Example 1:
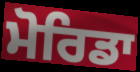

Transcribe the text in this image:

ਮੋਰਿਡਾ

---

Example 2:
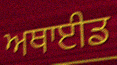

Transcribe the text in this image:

ਅਥਾਈਡ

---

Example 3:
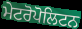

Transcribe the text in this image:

ਮੇਟਰੋਪੋਲਿਟਨ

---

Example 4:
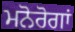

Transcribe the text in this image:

ਮਨੋਰੋਗਾਂ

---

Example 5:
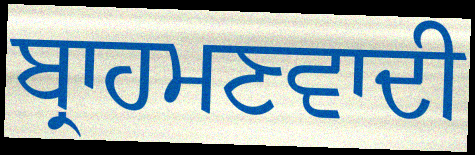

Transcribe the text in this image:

ਬ੍ਰਾਹਮਣਵਾਦੀ